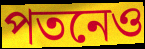
পতনেও